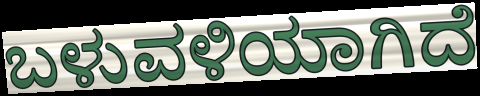
ಬಳುವಳಿಯಾಗಿದೆ